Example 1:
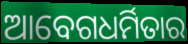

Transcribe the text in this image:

ଆବେଗଧର୍ମିତାର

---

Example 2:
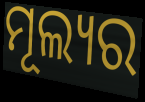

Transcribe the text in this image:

ମୂଲ୍ୟର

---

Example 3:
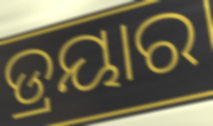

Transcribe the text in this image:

ଡ୍ରୟାର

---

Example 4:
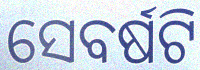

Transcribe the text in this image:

ସେବର୍ଷଟି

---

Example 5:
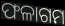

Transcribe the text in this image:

ଫଳାଗମ